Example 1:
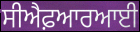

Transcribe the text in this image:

ਸੀਐਫ਼ਆਰਆਈ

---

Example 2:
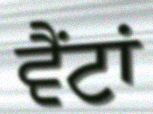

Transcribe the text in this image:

ਵੈਂਟਾਂ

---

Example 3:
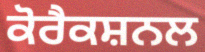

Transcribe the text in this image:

ਕੋਰੈਕਸ਼ਨਲ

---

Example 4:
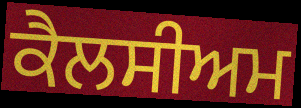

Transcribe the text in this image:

ਕੈਲਸੀਅਮ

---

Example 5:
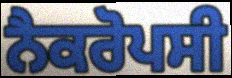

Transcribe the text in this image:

ਨੈਕਰੋਪਸੀ